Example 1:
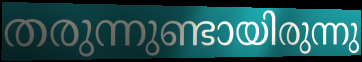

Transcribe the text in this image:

തരുന്നുണ്ടായിരുന്നു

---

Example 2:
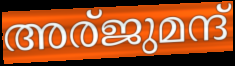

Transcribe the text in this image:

അര്ജുമന്ദ്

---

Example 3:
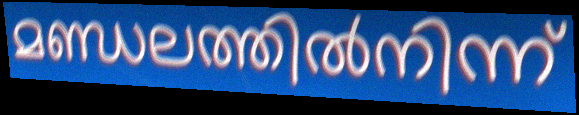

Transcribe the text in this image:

മണ്ഡലത്തിൽനിന്ന്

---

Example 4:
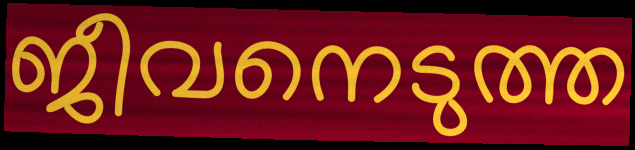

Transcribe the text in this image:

ജീവനെടുത്ത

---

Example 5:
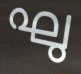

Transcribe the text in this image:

ഘു